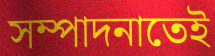
সম্পাদনাতেই